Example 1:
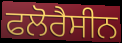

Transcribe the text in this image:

ਫਲੋਰੈਸੀਨ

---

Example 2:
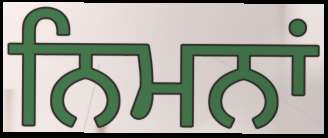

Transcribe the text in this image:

ਨਿਮਨਾਂ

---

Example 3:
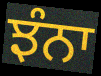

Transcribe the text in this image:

ਝੰਨਾ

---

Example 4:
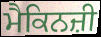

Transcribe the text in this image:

ਮੈਕਿਨਜ਼ੀ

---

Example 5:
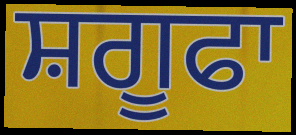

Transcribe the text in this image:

ਸ਼ਗੂਫਾ